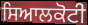
ਸਿਆਲਕੋਟੀ